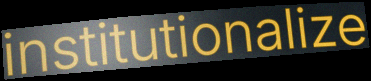
institutionalize